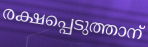
രക്ഷപ്പെടുത്താന്